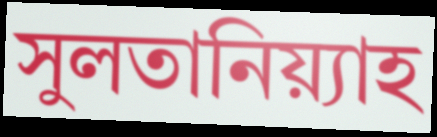
সুলতানিয়্যাহ